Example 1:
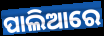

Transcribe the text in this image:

ପାଲିଆରେ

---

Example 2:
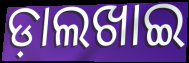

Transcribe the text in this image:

ଡ଼ାଲଖାଇ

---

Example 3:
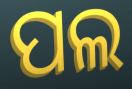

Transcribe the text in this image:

ପଲ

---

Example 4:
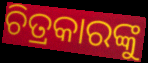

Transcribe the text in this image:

ଚିତ୍ରକାରଙ୍କୁ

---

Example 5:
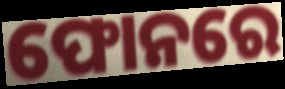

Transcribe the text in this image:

ଫୋନରେ